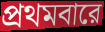
প্রথমবারে